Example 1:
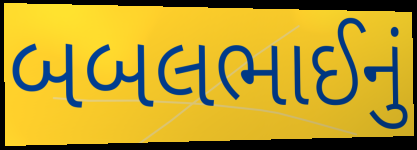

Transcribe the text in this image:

બબલભાઈનું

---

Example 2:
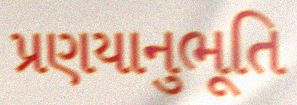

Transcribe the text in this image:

પ્રણયાનુભૂતિ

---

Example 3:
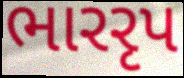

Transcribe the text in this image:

ભારરૃપ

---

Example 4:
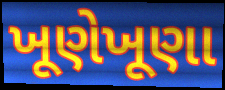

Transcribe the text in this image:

ખૂણેખૂણા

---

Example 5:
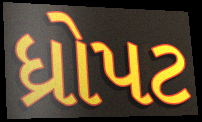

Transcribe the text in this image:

ધ્રોપટ